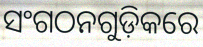
ସଂଗଠନଗୁଡ଼ିକରେ